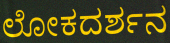
ಲೋಕದರ್ಶನ